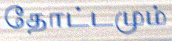
தோட்டமும்